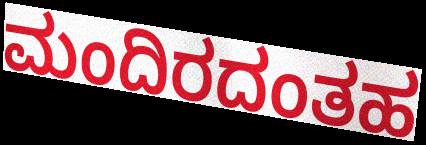
ಮಂದಿರದಂತಹ